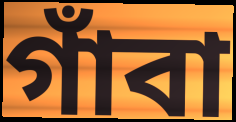
গাঁবা